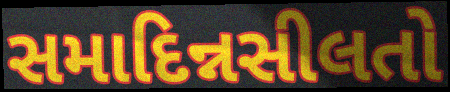
સમાદિન્નસીલતો